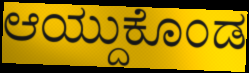
ಆಯ್ದುಕೊಂಡ